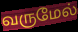
வருமேல்